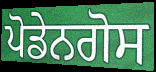
ਪੋਡੇਨਗੋਸ